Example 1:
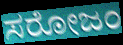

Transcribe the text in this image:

ಸರೋಜಂ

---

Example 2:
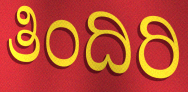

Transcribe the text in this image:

ತಿಂದಿರಿ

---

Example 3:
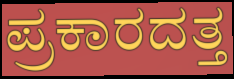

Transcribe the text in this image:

ಪ್ರಕಾರದತ್ತ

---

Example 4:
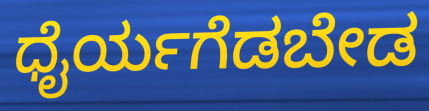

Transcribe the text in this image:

ಧೈರ್ಯಗೆಡಬೇಡ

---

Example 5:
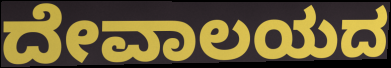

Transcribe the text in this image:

ದೇವಾಲಯದ